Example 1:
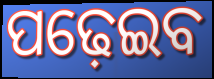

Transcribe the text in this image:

ପଢ଼େଇବ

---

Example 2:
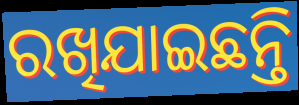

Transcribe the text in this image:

ରଖିଯାଇଛନ୍ତି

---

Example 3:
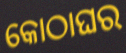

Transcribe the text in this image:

କୋଠାଘର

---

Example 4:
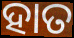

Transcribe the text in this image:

ହାତ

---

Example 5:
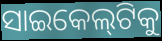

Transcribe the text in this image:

ସାଇକେଲ୍‌ଟିକୁ